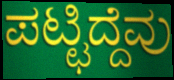
ಪಟ್ಟಿದ್ದೆವು